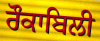
ਰੌਕਾਬਿਲੀ